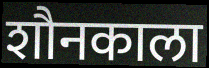
शौनकाला